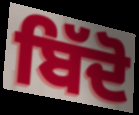
ਬਿੱਦੋ